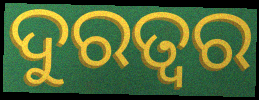
ଦୁରତ୍ଵର